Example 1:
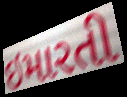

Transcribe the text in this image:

ઇમારતી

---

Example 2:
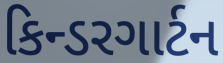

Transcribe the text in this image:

કિન્ડરગાર્ટન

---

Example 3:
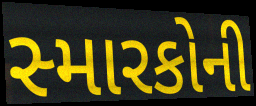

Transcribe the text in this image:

સ્મારકોની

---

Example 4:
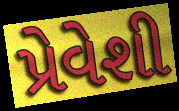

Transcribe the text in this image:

પ્રેવેશી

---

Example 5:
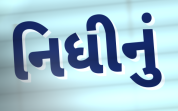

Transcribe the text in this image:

નિધીનું